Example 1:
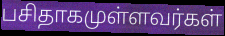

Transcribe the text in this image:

பசிதாகமுள்ளவர்கள்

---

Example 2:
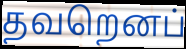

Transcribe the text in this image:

தவறெனப்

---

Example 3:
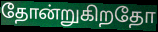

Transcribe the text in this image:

தோன்றுகிறதோ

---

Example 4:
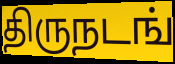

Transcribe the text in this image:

திருநடங்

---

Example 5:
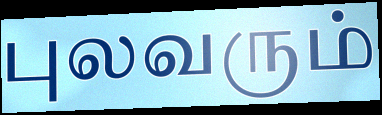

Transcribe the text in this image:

புலவரும்